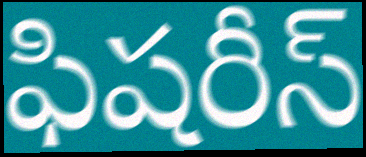
ఫిషరీస్